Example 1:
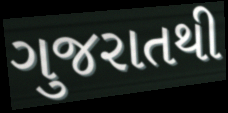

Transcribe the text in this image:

ગુજરાતથી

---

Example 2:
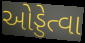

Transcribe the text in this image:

ઓડ્ડેત્વા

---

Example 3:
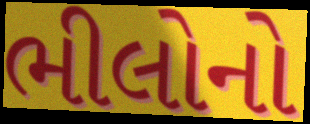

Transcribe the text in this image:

ભીલોનો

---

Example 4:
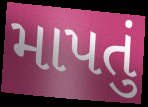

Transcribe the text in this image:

માપતું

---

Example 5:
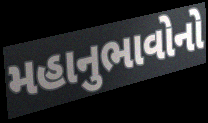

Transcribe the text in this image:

મહાનુભાવોનો